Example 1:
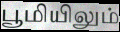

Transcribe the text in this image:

பூமியிலும்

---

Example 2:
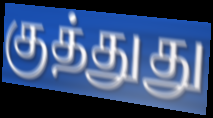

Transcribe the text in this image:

குத்துது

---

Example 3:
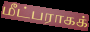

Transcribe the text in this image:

மீட்பராகக்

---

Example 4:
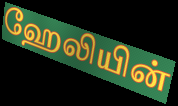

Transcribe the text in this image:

ஹேலியின்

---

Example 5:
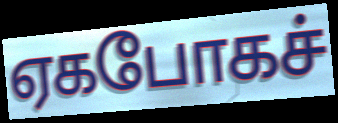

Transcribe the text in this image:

ஏகபோகச்